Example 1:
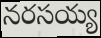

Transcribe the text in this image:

నరసయ్య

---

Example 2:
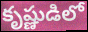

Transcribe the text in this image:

కృష్ణుడిలో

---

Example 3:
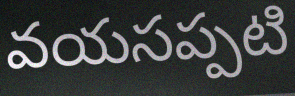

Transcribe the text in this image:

వయసప్పటి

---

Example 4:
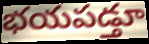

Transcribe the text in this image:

భయపడ్తూ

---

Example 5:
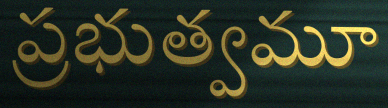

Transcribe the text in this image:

ప్రభుత్వమూ